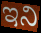
ಇನಿ